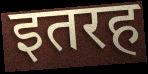
इतरह